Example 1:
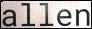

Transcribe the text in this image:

allen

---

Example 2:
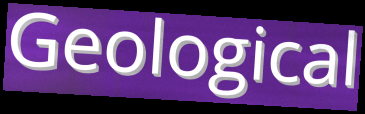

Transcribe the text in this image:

Geological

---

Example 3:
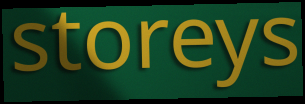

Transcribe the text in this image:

storeys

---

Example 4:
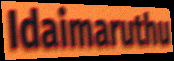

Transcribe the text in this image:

Idaimaruthu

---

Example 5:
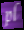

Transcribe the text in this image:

pl